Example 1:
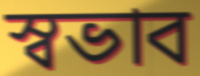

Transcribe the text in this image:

স্বভাব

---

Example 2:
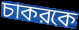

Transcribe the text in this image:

চাকরকে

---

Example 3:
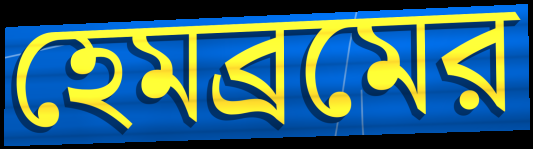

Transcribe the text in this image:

হেমব্রমের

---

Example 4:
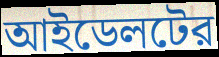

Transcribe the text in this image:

আইডেলটের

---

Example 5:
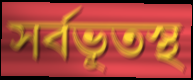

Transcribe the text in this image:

সর্বভূতস্থ